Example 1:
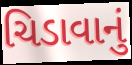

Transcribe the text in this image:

ચિડાવાનું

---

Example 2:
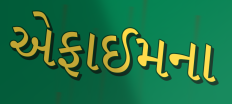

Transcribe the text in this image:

એફાઈમના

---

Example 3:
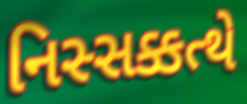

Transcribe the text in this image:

નિસ્સક્કત્થે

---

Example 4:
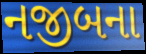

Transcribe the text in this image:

નજીબના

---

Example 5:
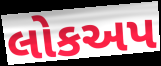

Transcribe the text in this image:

લોકઅપ